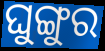
ଘୁଙ୍ଗୁର